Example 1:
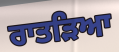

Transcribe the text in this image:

ਰਾਤੜਿਆ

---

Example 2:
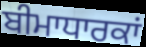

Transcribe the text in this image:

ਬੀਮਾਧਾਰਕਾਂ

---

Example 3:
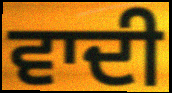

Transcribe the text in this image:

ਵਾਦੀ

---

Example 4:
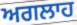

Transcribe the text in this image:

ਅਗਲਾਹ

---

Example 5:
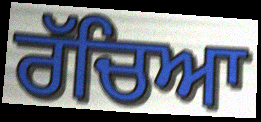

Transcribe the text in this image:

ਰੱਚਿਆ